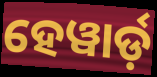
ହେୱାର୍ଡ଼